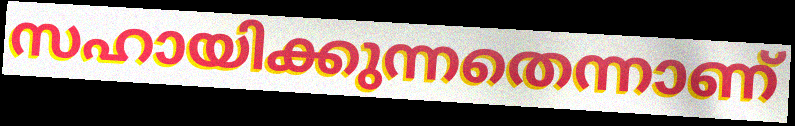
സഹായിക്കുന്നതെന്നാണ്